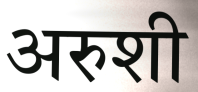
अरुशी